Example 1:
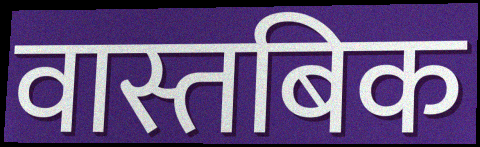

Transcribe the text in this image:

वास्तबिक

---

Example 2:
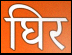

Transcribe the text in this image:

घिर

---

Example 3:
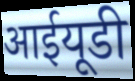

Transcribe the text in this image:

आईयूडी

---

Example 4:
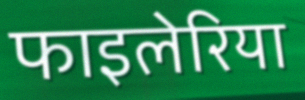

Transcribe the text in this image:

फाइलेरिया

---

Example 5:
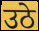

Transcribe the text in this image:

उठे